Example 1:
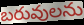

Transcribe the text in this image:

బరువులను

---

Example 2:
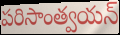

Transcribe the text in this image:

పరిసాంత్వయన్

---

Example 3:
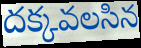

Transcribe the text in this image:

దక్కవలసిన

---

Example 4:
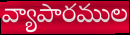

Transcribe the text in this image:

వ్యాపారముల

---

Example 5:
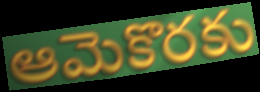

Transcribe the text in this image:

ఆమెకొరకు